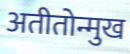
अतीतोन्मुख